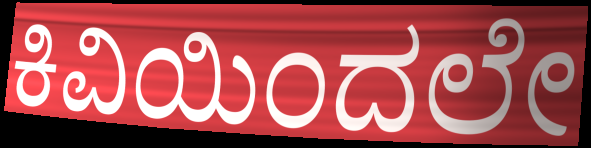
ಕಿವಿಯಿಂದಲೇ